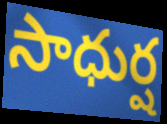
సాధుర్ష